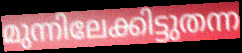
മുന്നിലേക്കിട്ടുതന്ന